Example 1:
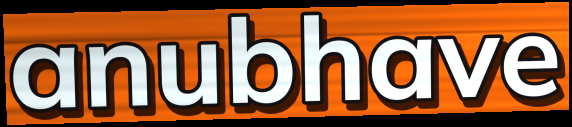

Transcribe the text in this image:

anubhave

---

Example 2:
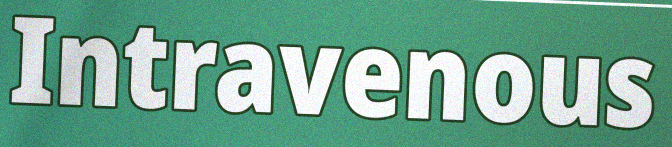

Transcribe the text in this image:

Intravenous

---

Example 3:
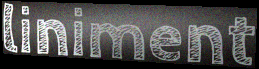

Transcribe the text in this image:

liniment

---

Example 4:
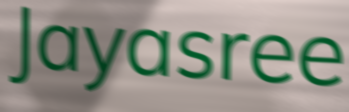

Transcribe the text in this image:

Jayasree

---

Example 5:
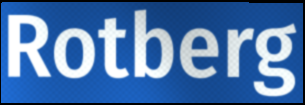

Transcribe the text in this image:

Rotberg